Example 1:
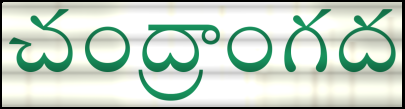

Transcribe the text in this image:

చంద్రాంగద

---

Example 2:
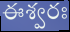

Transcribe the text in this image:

ఈశ్వరః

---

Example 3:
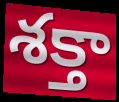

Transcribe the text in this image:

శక్తా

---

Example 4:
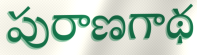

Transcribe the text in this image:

పురాణగాథ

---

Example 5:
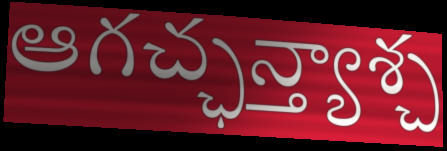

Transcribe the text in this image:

ఆగచ్ఛన్త్యాశ్చ